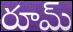
రూమ్